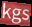
kgs